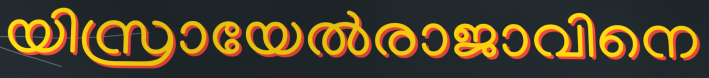
യിസ്രായേൽരാജാവിനെ